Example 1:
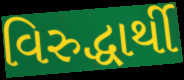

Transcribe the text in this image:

વિરુદ્ધાર્થી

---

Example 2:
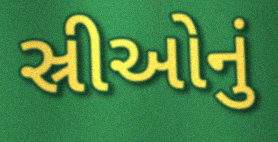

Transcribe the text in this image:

સ્રીઓનું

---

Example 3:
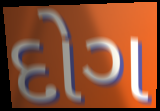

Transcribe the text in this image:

દોગ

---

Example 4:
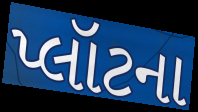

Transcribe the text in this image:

પ્લૉટના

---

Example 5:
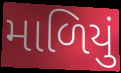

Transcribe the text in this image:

માળિયું